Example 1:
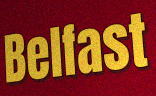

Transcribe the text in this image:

Belfast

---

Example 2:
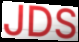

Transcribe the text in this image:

JDS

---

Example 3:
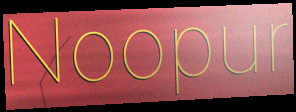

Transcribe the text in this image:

Noopur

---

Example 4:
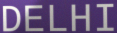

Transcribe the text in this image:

DELHI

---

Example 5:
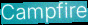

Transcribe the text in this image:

Campfire